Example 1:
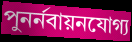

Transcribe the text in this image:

পুনর্নবায়নযোগ্য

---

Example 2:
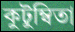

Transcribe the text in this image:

কুটুম্বিতা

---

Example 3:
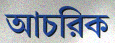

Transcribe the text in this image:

আচরিক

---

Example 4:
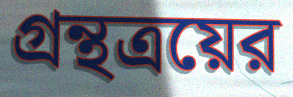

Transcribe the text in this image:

গ্রন্থত্রয়ের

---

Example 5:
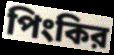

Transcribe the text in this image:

পিংকির